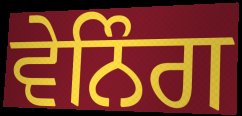
ਵੇਨਿੰਗ